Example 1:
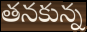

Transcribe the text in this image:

తనకున్న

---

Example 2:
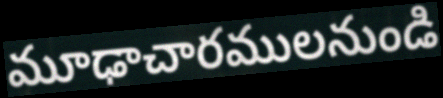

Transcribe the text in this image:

మూఢాచారములనుండి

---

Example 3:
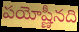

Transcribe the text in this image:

పయోష్ణీనది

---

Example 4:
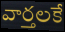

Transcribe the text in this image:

వార్తలకే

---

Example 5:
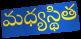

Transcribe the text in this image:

మధ్యస్థిత